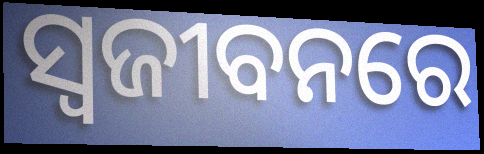
ସ୍ଵଜୀବନରେ